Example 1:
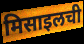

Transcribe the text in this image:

मिसाइलची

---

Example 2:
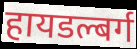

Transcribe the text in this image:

हायडल्बर्ग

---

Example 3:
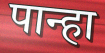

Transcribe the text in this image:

पान्हा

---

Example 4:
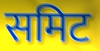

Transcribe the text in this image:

समिट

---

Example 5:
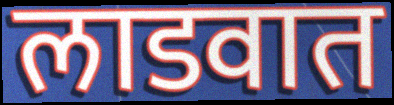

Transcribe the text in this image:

लाडवात